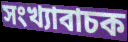
সংখ্যাবাচক